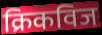
क्रिकविज